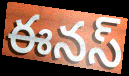
ఈనస్